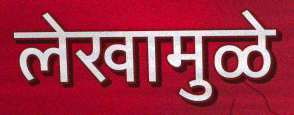
लेखामुळे